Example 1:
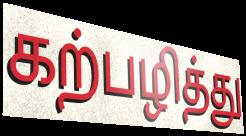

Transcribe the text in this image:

கற்பழித்து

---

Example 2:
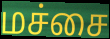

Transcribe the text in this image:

மச்சை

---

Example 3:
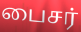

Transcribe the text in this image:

பைசர்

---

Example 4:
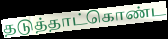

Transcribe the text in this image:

தடுத்தாட்கொண்ட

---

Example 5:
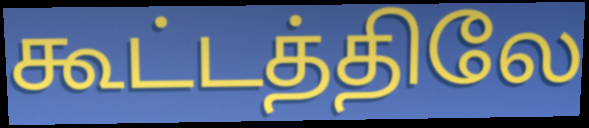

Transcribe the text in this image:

கூட்டத்திலே